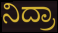
ನಿದ್ರಾ